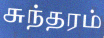
சுந்தரம்